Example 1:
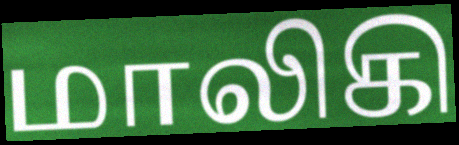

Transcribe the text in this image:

மாலிகி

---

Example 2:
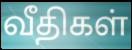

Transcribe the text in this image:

வீதிகள்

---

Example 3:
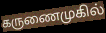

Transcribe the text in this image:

கருணைமுகில்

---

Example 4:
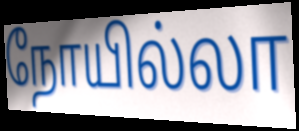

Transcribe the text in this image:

நோயில்லா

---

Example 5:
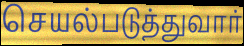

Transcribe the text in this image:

செயல்படுத்துவார்